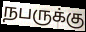
நபருக்கு